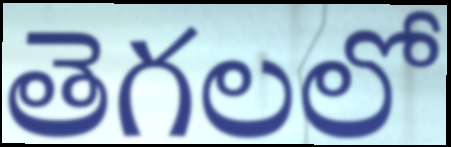
తెగలలో